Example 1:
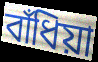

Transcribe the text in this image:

বাঁধিয়া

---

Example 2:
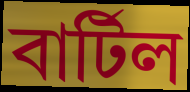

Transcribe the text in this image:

বার্টিল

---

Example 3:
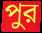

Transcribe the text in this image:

পুর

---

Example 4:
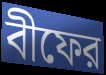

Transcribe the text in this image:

বীফের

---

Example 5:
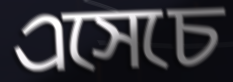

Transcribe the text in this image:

এসেচে